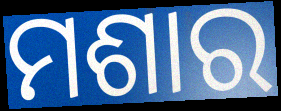
ମଶାର